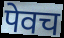
पेवच